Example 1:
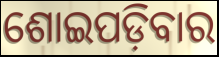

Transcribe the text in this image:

ଶୋଇପଡ଼ିବାର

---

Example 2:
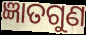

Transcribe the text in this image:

ଜ୍ଞାତଗୁଣ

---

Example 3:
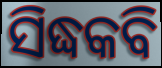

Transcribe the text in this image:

ସିଦ୍ଧକବି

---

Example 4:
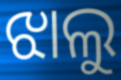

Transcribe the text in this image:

ଝାଲୁ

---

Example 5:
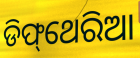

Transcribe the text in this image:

ଡିଫ୍‌ଥେରିଆ